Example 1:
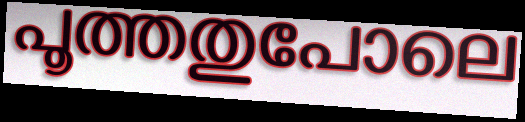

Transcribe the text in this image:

പൂത്തതുപോലെ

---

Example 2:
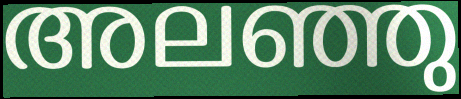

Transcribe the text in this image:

അലഞ്ഞു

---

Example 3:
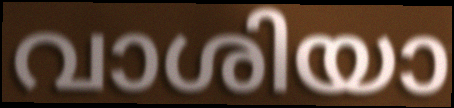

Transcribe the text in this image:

വാശിയാ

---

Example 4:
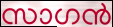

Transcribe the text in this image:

സാഗൻ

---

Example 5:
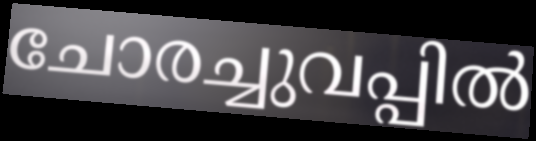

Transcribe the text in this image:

ചോരച്ചുവപ്പിൽ